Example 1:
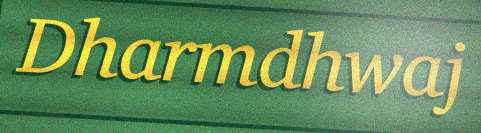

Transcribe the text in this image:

Dharmdhwaj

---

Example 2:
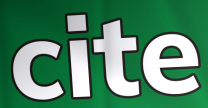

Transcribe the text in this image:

cite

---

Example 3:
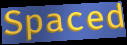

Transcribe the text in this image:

Spaced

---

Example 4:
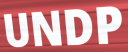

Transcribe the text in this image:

UNDP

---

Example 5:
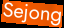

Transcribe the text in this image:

Sejong